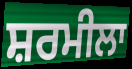
ਸ਼ਰਮੀਲਾ